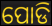
ପୋଡି